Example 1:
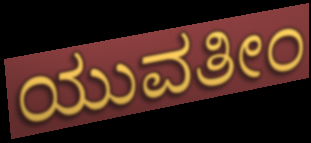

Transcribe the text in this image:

ಯುವತೀಂ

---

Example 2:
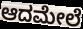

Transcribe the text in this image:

ಆದಮೇಲೆ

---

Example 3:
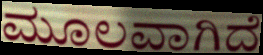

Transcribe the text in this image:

ಮೂಲವಾಗಿದೆ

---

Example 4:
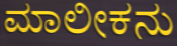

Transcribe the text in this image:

ಮಾಲೀಕನು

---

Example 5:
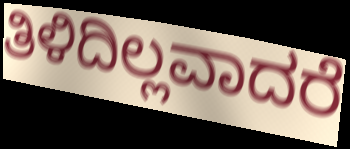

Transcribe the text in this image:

ತಿಳಿದಿಲ್ಲವಾದರೆ